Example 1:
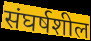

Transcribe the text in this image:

संघर्षशील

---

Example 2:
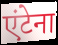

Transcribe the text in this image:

एंटेना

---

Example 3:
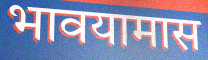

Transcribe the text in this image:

भावयामास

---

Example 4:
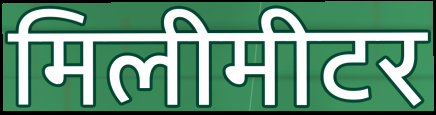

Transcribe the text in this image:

मिलीमीटर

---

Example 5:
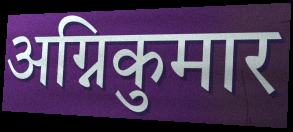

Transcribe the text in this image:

अग्निकुमार